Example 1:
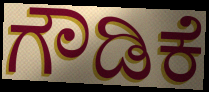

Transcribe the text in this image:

ಗೌಡಿಕೆ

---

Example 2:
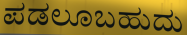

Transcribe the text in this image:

ಪಡಲೂಬಹುದು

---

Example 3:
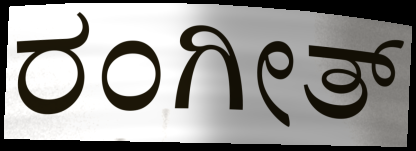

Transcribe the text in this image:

ರಂಗೀತ್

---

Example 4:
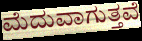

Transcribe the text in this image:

ಮೆದುವಾಗುತ್ತವೆ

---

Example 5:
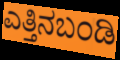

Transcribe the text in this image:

ಎತ್ತಿನಬಂಡಿ